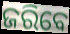
ଜରିବେ